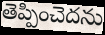
తెప్పించెదను